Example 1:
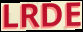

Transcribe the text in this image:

LRDE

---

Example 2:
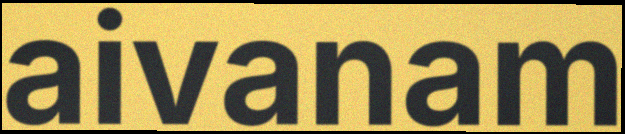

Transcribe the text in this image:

aivanam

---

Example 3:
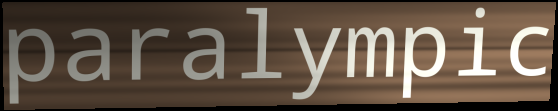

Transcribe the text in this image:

paralympic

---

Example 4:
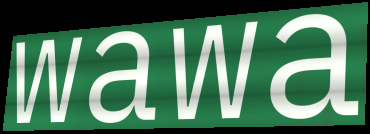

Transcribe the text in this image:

wawa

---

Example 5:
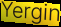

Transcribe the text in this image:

Yergin